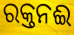
ରକ୍ତନଈ